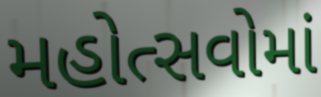
મહોત્સવોમાં